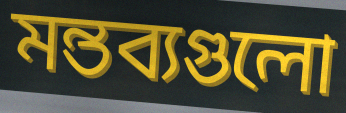
মন্তব্যগুলো